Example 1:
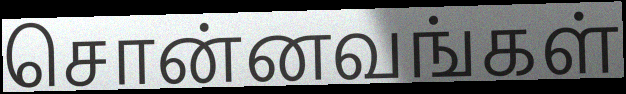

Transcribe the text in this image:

சொன்னவங்கள்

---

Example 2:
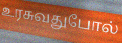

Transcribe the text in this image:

உரசுவதுபோல்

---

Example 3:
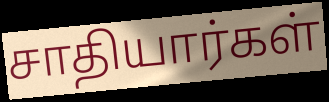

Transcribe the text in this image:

சாதியார்கள்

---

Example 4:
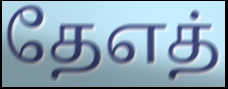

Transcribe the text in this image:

தேஎத்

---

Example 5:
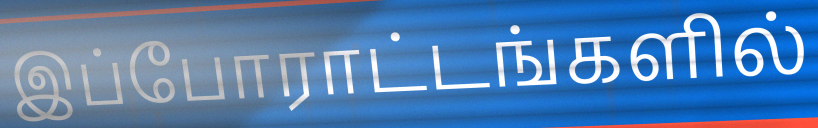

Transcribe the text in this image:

இப்போராட்டங்களில்